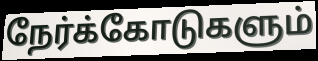
நேர்க்கோடுகளும்